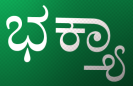
ಭಕ್ತ್ಯಾ